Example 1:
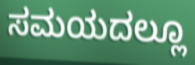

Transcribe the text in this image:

ಸಮಯದಲ್ಲೂ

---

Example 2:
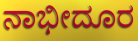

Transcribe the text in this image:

ನಾಭೀದೂರ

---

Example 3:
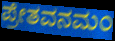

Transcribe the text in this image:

ಪ್ರೇತವನಮಂ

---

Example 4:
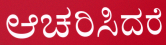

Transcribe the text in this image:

ಆಚರಿಸಿದರೆ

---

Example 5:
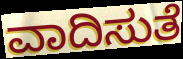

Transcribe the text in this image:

ವಾದಿಸುತೆ